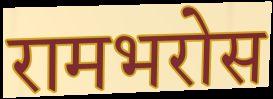
रामभरोस